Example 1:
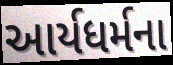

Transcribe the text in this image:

આર્યધર્મના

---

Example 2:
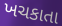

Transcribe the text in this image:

ખચકાતા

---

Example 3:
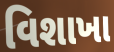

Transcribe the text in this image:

વિશાખા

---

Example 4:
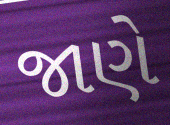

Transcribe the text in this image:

જાણે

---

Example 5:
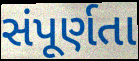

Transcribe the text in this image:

સંપૂર્ણતા